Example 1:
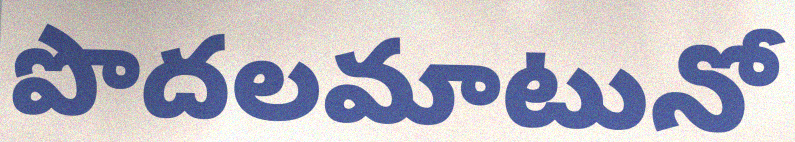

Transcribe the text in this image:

పొదలమాటునో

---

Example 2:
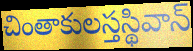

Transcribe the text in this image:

చింతాకులస్తస్థివాన్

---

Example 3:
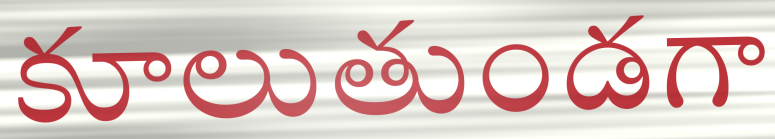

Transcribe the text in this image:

కూలుతుండగా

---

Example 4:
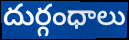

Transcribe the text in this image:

దుర్గంధాలు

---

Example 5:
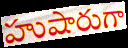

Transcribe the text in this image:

హుషారుగా